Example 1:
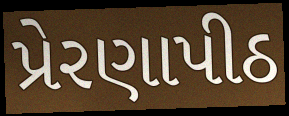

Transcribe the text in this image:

પ્રેરણાપીઠ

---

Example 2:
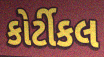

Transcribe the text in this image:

કોર્ટીકલ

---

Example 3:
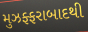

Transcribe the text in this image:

મુઝફ્ફરાબાદથી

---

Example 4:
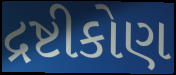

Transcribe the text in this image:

દ્રષ્ટીકોણ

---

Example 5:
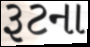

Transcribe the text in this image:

રૂટના